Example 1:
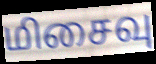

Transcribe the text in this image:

மிசைவு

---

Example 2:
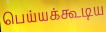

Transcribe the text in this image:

பெய்யக்கூடிய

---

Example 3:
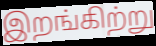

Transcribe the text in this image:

இறங்கிற்று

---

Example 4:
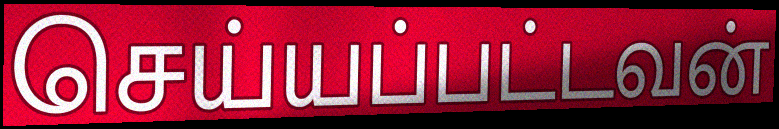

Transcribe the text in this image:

செய்யப்பட்டவன்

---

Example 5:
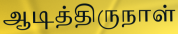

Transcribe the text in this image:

ஆடித்திருநாள்